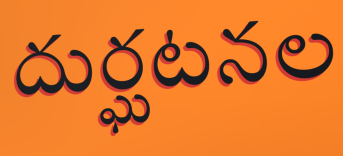
దుర్ఘటనల